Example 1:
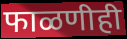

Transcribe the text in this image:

फाळणीही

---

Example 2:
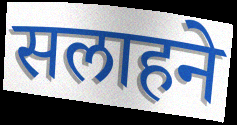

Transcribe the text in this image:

सलाहने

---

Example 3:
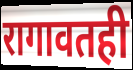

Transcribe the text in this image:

रागावतही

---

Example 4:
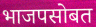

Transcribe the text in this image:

भाजपसोबत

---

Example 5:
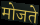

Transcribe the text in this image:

मोजते